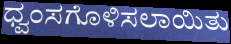
ಧ್ವಂಸಗೊಳಿಸಲಾಯಿತು